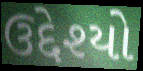
ઉદ્દેશ્યો